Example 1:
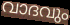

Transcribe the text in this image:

വാദവും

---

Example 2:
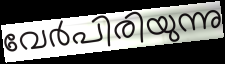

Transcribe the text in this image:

വേർപിരിയുന്നു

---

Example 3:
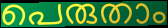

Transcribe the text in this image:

പെരുതാം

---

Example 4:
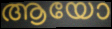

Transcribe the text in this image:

ആയോ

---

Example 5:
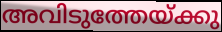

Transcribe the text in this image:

അവിടുത്തേയ്ക്കു